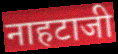
नाहटाजी